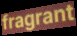
fragrant